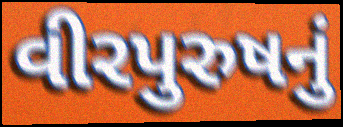
વીરપુરુષનું